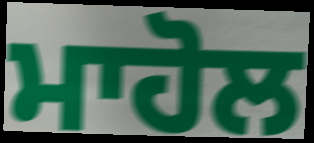
ਮਾਹੋਲ